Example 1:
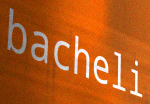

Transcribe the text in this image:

bacheli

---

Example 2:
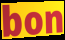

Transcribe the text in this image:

bon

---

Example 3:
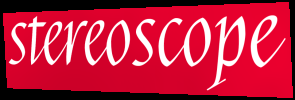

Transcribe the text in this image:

stereoscope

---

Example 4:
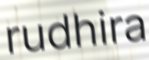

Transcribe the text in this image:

rudhira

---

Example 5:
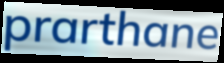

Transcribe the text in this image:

prarthane